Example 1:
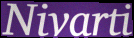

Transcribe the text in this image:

Nivarti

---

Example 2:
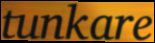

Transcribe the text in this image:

tunkare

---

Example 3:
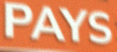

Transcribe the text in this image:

PAYS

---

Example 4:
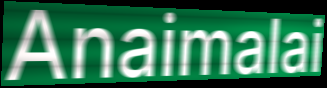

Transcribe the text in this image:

Anaimalai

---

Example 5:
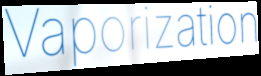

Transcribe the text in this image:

Vaporization